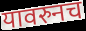
यावरुनच